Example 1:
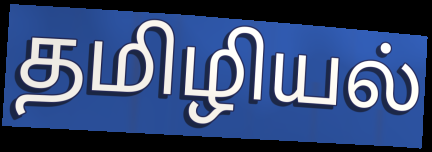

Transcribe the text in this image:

தமிழியல்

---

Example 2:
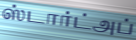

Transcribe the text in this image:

ஸ்டார்ட்அப்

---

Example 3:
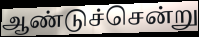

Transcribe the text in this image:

ஆண்டுச்சென்று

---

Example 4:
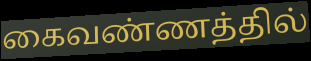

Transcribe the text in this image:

கைவண்ணத்தில்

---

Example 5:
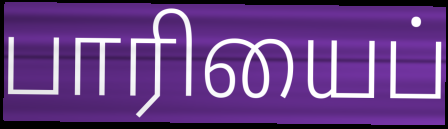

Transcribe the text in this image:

பாரியைப்